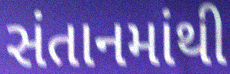
સંતાનમાંથી